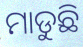
ମାଡୁଛି